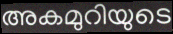
അകമുറിയുടെ